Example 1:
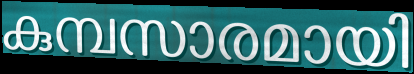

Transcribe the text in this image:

കുമ്പസാരമായി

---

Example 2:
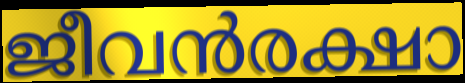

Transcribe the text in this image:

ജീവൻരക്ഷാ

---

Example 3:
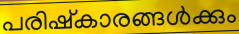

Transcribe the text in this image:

പരിഷ്കാരങ്ങൾക്കും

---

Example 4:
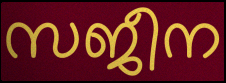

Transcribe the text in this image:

സജീന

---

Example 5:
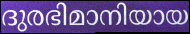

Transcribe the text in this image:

ദുരഭിമാനിയായ